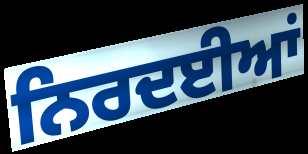
ਨਿਰਦਈਆਂ